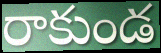
రాకుండ